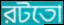
রটতো